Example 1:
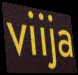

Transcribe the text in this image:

viija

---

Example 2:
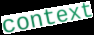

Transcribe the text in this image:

context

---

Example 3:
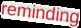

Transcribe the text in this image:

reminding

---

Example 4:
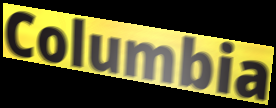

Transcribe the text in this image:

Columbia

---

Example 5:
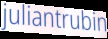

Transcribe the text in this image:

juliantrubin